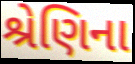
શ્રેણિના